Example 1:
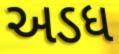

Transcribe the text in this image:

અડધ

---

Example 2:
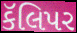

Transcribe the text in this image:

કૅલિપર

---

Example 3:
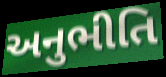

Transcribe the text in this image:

અનુભીતિ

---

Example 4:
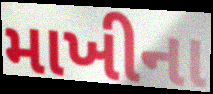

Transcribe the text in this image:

માખીના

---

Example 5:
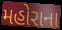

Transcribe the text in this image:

મહોરાના